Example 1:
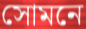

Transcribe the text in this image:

সোমনে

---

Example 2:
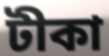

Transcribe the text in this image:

টীকা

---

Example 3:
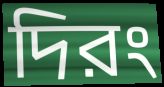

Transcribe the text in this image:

দিরং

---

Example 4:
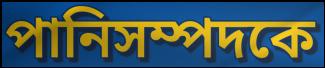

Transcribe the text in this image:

পানিসম্পদকে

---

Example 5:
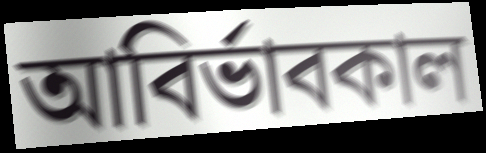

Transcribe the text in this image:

আবির্ভাবকাল